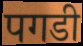
पगडी